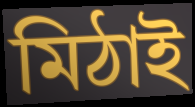
মিঠাই